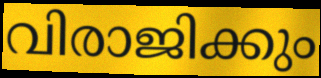
വിരാജിക്കും